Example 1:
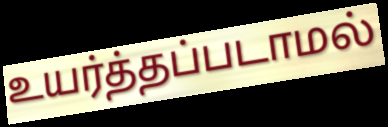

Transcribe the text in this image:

உயர்த்தப்படாமல்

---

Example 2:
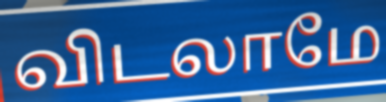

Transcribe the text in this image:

விடலாமே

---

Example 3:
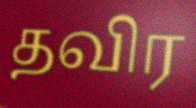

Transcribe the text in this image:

தவிர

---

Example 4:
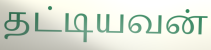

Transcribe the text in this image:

தட்டியவன்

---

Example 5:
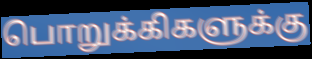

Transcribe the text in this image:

பொறுக்கிகளுக்கு